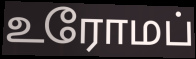
உரோமப்